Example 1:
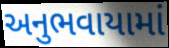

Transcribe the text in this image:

અનુભવાયામાં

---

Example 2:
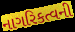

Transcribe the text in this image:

નાગરિકત્વની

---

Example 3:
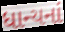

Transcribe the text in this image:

ધાન્યનાં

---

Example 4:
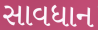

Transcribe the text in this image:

સાવધાન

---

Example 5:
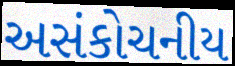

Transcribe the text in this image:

અસંકોચનીય